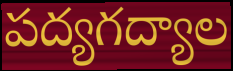
పద్యగద్యాల